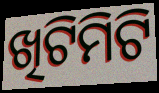
ଖିଟିମିଟି